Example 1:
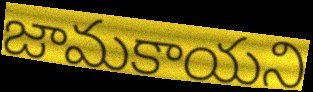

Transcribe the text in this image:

జామకాయని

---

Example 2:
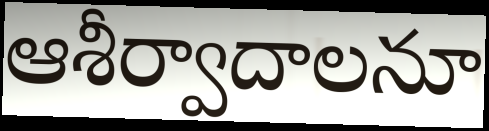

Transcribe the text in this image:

ఆశీర్వాదాలనూ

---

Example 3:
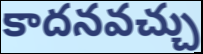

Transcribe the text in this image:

కాదనవచ్చు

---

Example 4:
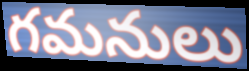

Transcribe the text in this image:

గమనులు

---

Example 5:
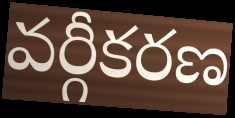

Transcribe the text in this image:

వర్గీకరణ